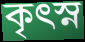
কৃৎস্ন